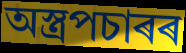
অস্ত্ৰপচাৰৰ